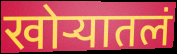
खोऱ्यातलं